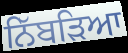
ਨਿੱਬੜਿਆ